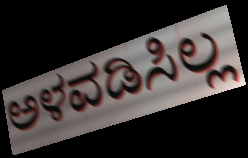
ಅಳವಡಿಸಿಲ್ಲ